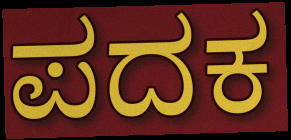
ಪದಕ